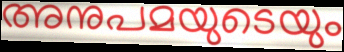
അനുപമയുടെയും